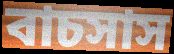
বাচসাস